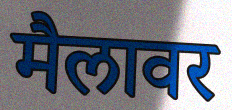
मैलावर